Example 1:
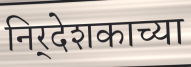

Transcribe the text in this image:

निर्देशकाच्या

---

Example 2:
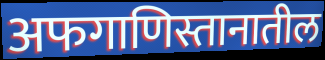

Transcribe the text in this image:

अफगाणिस्तानातील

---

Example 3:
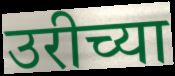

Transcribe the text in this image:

उरीच्या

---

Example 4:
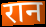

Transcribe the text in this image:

रान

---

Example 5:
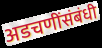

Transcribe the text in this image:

अडचणींसंबंधी